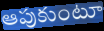
ఆపుకుంటూ